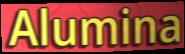
Alumina